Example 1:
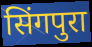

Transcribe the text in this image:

सिंगपुरा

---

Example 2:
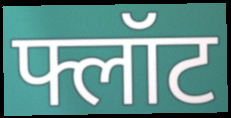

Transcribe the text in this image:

फ्लॉट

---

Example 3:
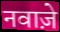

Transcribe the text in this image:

नवाज़े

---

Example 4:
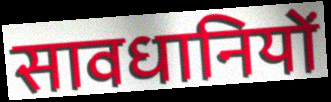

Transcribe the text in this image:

सावधानियों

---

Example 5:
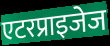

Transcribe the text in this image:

एटरप्राइजेज